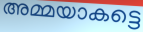
അമ്മയാകട്ടെ